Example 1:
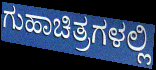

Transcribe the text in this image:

ಗುಹಾಚಿತ್ರಗಳಲ್ಲಿ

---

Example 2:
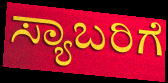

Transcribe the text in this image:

ಸ್ಯಾಬರಿಗೆ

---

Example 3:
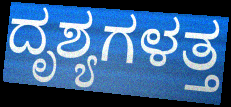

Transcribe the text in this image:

ದೃಶ್ಯಗಳತ್ತ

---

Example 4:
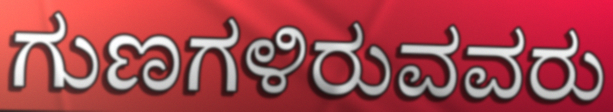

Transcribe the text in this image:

ಗುಣಗಳಿರುವವರು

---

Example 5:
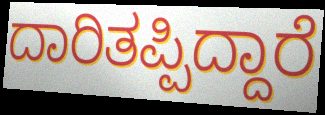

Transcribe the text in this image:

ದಾರಿತಪ್ಪಿದ್ದಾರೆ